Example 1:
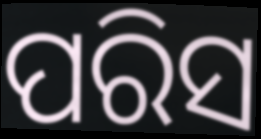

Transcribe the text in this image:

ପରିସ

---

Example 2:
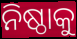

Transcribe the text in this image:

ନିଷ୍ଠାକୁ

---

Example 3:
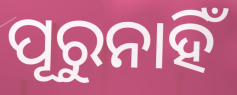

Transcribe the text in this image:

ପୂରୁନାହିଁ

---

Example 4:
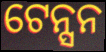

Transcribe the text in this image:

ଟେନ୍ସନ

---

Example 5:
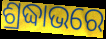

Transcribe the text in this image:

ଶ୍ରଦ୍ଧାଭରେ